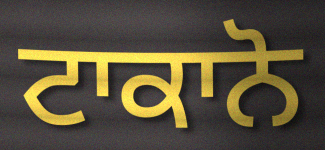
ਟਾਕਾਨੋ